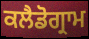
ਕਲੈਡੋਗ੍ਰਾਮ